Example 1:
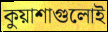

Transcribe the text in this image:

কুয়াশাগুলোই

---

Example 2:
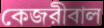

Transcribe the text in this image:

কেজরীবাল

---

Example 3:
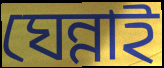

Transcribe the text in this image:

ঘেন্নাই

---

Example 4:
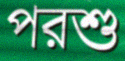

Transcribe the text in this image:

পরশু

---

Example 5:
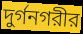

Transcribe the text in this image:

দুর্গনগরীর